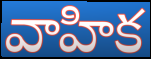
వాహిక